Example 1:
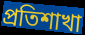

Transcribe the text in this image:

প্রতিশাখা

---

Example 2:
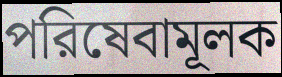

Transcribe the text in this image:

পরিষেবামূলক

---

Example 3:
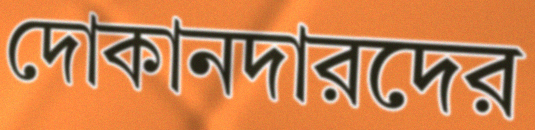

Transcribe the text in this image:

দোকানদারদের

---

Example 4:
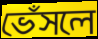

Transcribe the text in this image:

ভেঁসলে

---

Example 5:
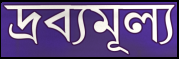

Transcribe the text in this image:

দ্রব্যমূল্য